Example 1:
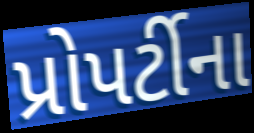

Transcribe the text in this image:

પ્રોપર્ટીના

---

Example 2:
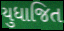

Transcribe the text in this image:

યુધાજિત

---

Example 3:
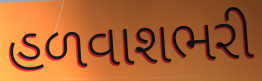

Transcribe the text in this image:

હળવાશભરી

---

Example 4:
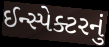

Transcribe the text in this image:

ઈન્સ્પેક્ટરનું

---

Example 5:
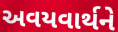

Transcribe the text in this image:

અવયવાર્થને